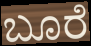
ಬೂರೆ